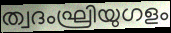
ത്വദംഘ്രിയുഗളം